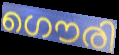
ഗൌരി